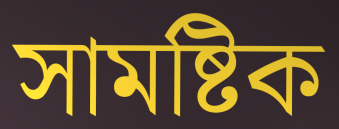
সামষ্টিক